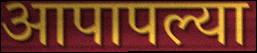
आपापल्या